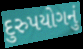
દુરુપયોગનું